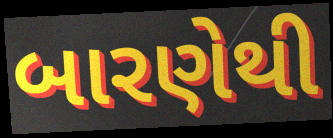
બારણેથી